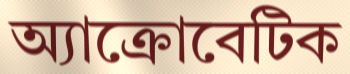
অ্যাক্রোবেটিক